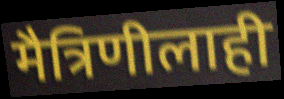
मैत्रिणीलाही